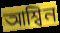
আশ্বিন